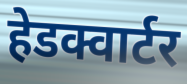
हेडक्वार्टर